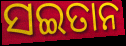
ସଇତାନ